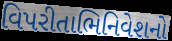
વિપરીતાભિનિવેશનો